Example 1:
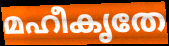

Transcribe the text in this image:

മഹീകൃതേ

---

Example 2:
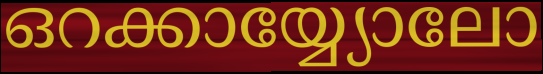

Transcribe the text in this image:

ഒറക്കായ്യ്യോലോ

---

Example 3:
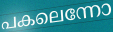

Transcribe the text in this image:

പകലെന്നോ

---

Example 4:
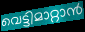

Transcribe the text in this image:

വെട്ടിമാറ്റാൻ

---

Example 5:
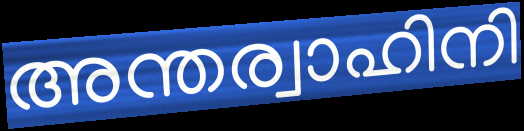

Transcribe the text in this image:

അന്തര്വാഹിനി